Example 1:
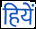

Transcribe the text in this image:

हियें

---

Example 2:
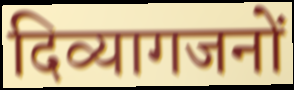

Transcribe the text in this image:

दिव्यागजनों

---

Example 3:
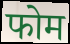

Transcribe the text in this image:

फोम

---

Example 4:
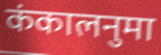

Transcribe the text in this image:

कंकालनुमा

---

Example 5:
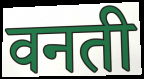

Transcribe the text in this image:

वनती